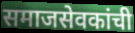
समाजसेवकांची